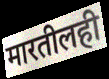
मारतीलही